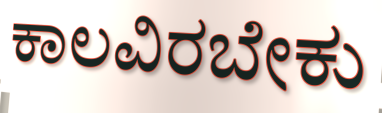
ಕಾಲವಿರಬೇಕು